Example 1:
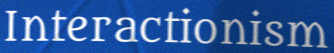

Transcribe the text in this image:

Interactionism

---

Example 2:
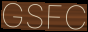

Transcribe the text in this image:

GSFC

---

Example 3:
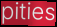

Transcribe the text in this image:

pities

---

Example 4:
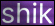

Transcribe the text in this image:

shik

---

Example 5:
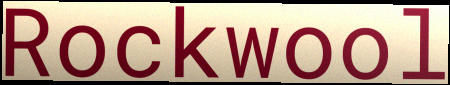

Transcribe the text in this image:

Rockwool